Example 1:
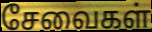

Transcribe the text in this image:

சேவைகள்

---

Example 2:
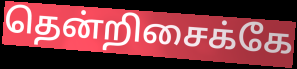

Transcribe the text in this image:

தென்றிசைக்கே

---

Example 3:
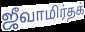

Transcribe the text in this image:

ஜீவாமிர்தக்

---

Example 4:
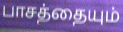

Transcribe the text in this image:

பாசத்தையும்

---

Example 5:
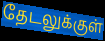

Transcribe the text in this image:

தேடலுக்குள்